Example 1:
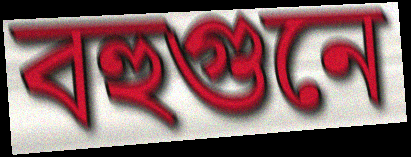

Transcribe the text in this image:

বহুগুনে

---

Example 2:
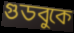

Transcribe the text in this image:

গুডবুকে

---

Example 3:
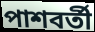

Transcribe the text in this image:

পাশবর্তী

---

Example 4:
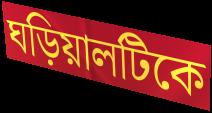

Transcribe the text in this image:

ঘড়িয়ালটিকে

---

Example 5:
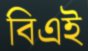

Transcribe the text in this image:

বিএই